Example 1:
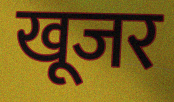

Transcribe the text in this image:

खूजर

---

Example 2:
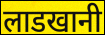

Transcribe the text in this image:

लाडखानी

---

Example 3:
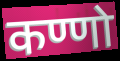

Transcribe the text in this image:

कण्णो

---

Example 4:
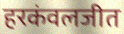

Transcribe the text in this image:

हरकंवलजीत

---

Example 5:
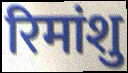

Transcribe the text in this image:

रिमांशु